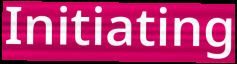
Initiating